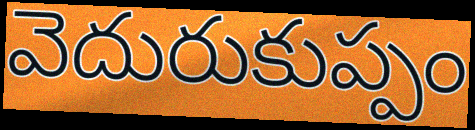
వెదురుకుప్పం